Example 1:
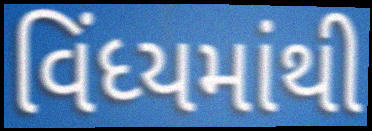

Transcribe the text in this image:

વિંધ્યમાંથી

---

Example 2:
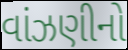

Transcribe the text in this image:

વાંઝણીનો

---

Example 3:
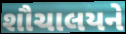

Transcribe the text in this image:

શૌચાલયને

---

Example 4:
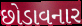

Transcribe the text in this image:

છોડાવનાર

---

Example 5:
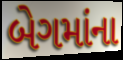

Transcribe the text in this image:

બેગમાંના